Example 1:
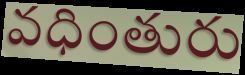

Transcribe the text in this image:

వధింతురు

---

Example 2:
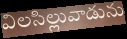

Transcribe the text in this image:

విలసిల్లువాడును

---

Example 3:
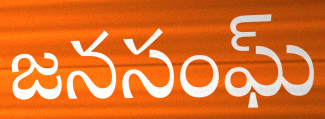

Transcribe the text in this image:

జనసంఘ్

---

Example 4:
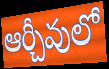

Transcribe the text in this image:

ఆర్చీవులో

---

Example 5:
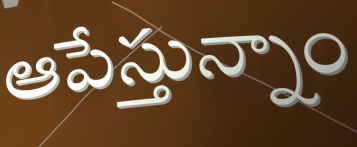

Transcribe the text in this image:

ఆపేస్తున్నాం